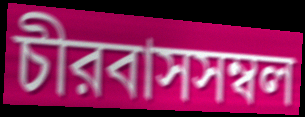
চীরবাসসম্বল